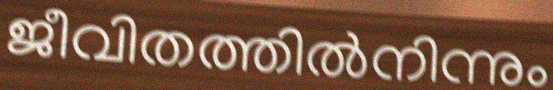
ജീവിതത്തിൽനിന്നും